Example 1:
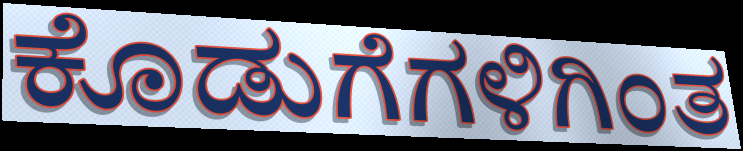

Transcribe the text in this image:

ಕೊಡುಗೆಗಳಿಗಿಂತ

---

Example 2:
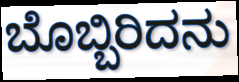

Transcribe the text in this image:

ಬೊಬ್ಬಿರಿದನು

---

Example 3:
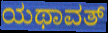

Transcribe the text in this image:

ಯಥಾವತ್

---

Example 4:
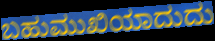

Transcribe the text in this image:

ಬಹುಮುಖಿಯಾದುದು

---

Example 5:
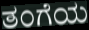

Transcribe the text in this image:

ತಂಗೆಯ